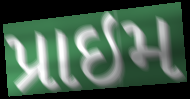
પ્રાઇમ